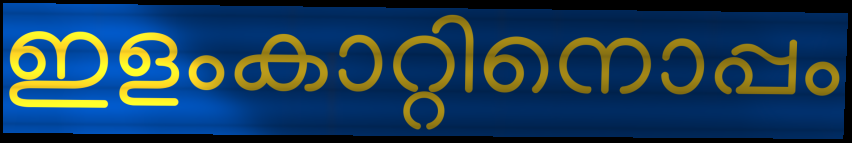
ഇളംകാറ്റിനൊപ്പം